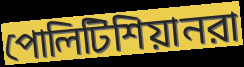
পোলিটিশিয়ানরা